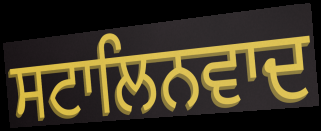
ਸਟਾਲਿਨਵਾਦ